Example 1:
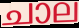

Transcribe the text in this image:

ചാല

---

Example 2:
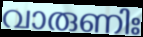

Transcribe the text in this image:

വാരുണിഃ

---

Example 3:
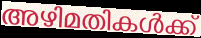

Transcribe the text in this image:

അഴിമതികൾക്ക്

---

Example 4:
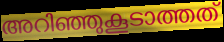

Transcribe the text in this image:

അറിഞ്ഞുകൂടാത്തത്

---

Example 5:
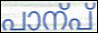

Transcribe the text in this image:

പാന്പ്